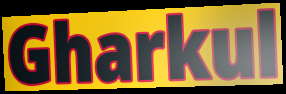
Gharkul